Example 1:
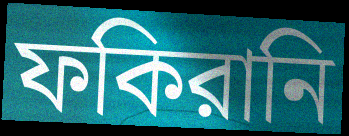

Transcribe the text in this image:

ফকিরানি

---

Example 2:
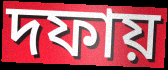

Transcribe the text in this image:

দফায়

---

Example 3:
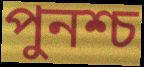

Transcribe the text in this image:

পুনশ্চ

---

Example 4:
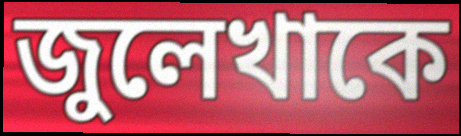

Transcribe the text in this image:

জুলেখাকে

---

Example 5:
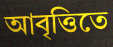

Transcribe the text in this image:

আবৃত্তিতে